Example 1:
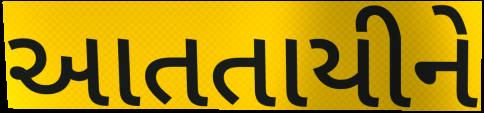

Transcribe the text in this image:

આતતાયીને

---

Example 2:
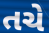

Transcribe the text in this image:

તચે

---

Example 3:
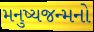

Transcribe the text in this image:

મનુષ્યજન્મનો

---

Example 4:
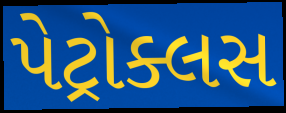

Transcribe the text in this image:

પેટ્રોક્લસ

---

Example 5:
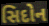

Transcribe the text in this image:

સિદોન